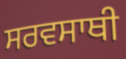
ਸਰਵਸਾਥੀ